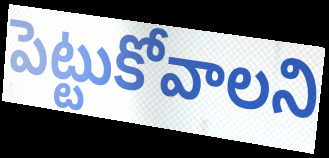
పెట్టుకోవాలని